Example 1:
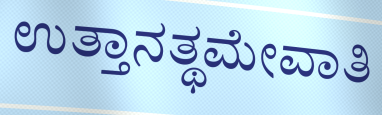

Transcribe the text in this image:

ಉತ್ತಾನತ್ಥಮೇವಾತಿ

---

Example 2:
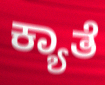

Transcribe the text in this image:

ಕ್ಯಾತೆ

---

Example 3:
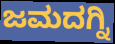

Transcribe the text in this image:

ಜಮದಗ್ನಿ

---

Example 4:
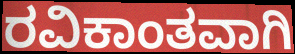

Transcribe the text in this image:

ರವಿಕಾಂತವಾಗಿ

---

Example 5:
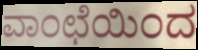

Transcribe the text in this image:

ವಾಂಛೆಯಿಂದ